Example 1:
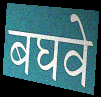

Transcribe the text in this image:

बघवे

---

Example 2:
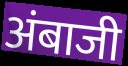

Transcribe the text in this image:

अंबाजी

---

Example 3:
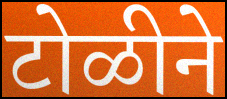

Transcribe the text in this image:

टोळीने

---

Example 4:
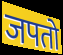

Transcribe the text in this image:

जपतो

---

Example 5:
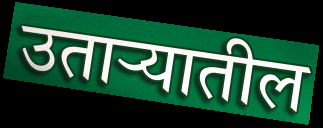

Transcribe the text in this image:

उताऱ्यातील